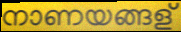
നാണയങ്ങള്